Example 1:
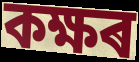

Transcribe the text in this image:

কক্ষৰ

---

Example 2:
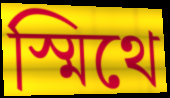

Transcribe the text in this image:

স্মিথে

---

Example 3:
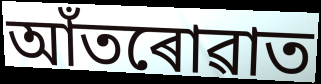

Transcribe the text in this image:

আঁতৰোৱাত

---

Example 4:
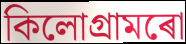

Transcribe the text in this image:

কিলোগ্ৰামৰো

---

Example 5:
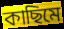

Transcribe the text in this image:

কাছিমে